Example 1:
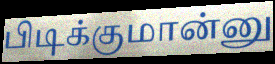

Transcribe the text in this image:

பிடிக்குமான்னு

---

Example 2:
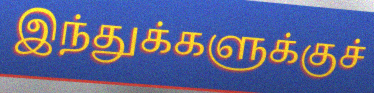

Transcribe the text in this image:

இந்துக்களுக்குச்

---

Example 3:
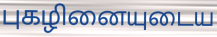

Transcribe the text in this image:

புகழினையுடைய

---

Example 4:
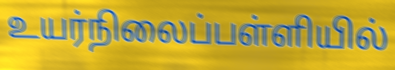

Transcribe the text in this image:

உயர்நிலைப்பள்ளியில்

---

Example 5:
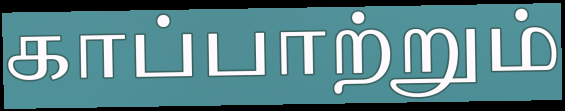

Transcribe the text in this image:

காப்பாற்றும்